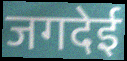
जगदेई